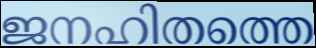
ജനഹിതത്തെ